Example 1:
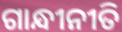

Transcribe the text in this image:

ଗାନ୍ଧୀନୀତି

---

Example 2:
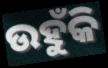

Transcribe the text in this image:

ଉହୁଁକି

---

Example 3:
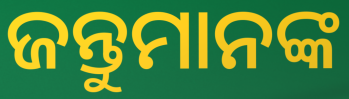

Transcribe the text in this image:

ଜନ୍ତୁମାନଙ୍କ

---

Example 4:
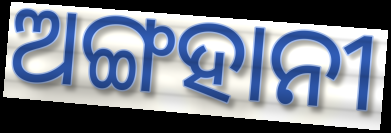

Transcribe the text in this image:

ଅଙ୍ଗହାନୀ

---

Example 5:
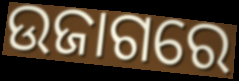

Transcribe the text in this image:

ଉଜାଗରେ